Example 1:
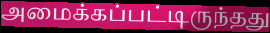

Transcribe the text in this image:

அமைக்கப்பட்டிருந்தது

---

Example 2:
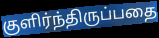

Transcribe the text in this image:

குளிர்ந்திருப்பதை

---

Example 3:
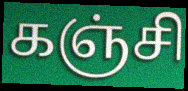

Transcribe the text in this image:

கஞ்சி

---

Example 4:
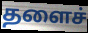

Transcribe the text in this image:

தளைச்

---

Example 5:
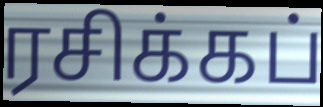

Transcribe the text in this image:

ரசிக்கப்